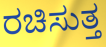
ರಚಿಸುತ್ತ